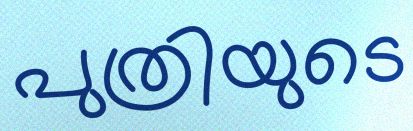
പുത്രിയുടെ